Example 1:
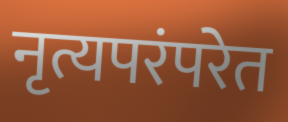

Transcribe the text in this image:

नृत्यपरंपरेत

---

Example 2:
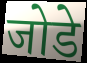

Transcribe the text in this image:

जोडे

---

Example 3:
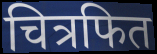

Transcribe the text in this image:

चित्रफित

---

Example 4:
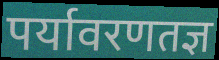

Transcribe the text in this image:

पर्यावरणतज्ञ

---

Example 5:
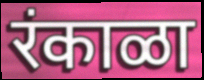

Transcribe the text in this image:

रंकाळा